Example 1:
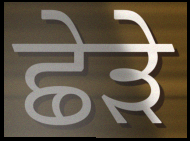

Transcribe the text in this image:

ਛੇੜੇ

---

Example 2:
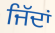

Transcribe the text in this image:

ਜਿੱਦਾਂ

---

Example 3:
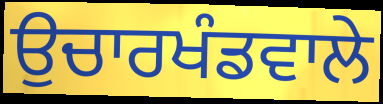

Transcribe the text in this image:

ਉਚਾਰਖੰਡਵਾਲੇ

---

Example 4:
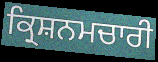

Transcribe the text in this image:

ਕ੍ਰਿਸ਼ਨਮਚਾਰੀ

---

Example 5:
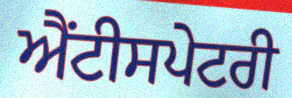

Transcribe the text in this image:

ਐਂਟੀਸਪੇਟਰੀ